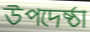
উপদেষ্ঠা